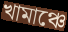
খামাঞ্চে